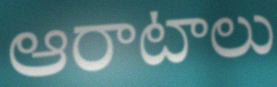
ఆరాటాలు